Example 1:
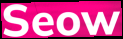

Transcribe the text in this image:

Seow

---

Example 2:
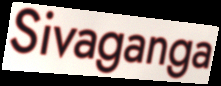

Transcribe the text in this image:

Sivaganga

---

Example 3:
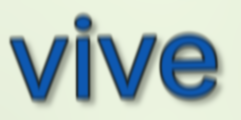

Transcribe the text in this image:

vive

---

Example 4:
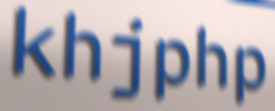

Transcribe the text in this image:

khjphp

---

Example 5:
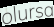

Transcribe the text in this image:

olursa